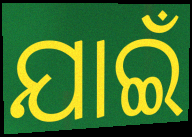
ଯାଇଁ